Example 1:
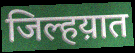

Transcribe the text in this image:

जिल्हय़ात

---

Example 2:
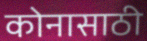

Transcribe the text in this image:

कोनासाठी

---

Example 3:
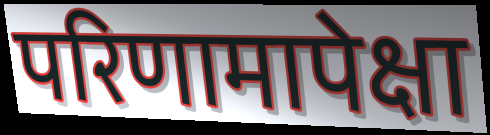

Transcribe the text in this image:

परिणामापेक्षा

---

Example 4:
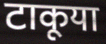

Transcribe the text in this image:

टाकूया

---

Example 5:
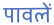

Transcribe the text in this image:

पावलें